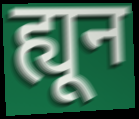
ह्यून